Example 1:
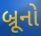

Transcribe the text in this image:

બ્રૂનો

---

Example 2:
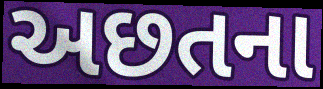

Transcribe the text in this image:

અછતના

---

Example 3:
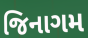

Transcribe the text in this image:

જિનાગમ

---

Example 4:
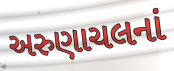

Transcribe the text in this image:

અરુણાચલનાં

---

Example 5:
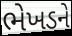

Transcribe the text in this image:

ભેખડને